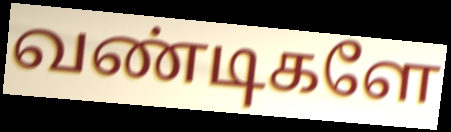
வண்டிகளே